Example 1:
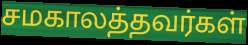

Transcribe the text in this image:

சமகாலத்தவர்கள்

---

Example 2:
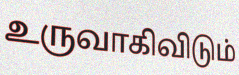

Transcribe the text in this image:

உருவாகிவிடும்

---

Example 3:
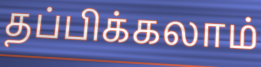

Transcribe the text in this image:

தப்பிக்கலாம்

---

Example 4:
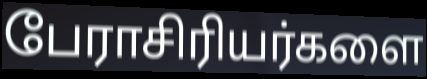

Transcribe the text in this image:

பேராசிரியர்களை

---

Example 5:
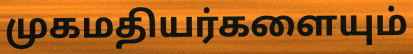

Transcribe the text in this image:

முகமதியர்களையும்